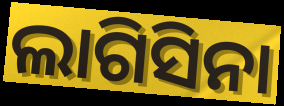
ଲାଗିସିନା